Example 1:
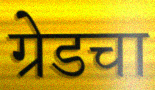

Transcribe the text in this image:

ग्रेडचा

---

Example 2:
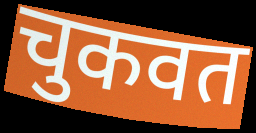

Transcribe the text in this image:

चुकवत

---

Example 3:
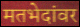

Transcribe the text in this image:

मतभेदांवर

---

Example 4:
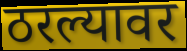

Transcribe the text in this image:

ठरल्यावर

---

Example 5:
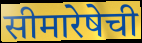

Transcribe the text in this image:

सीमारेषेची